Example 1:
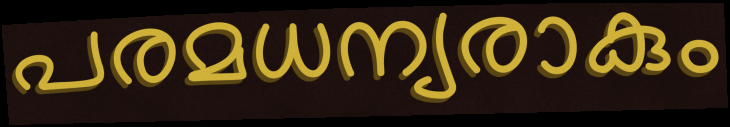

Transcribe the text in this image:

പരമധന്യരാകും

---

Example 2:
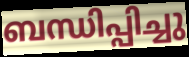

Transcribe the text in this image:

ബന്ധിപ്പിച്ചു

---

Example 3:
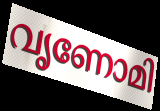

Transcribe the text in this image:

വൃണോമി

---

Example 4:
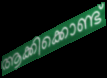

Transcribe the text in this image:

ആക്കിക്കൊണ്ട്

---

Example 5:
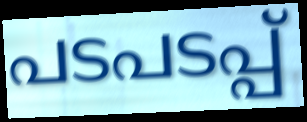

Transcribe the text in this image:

പടപടപ്പ്